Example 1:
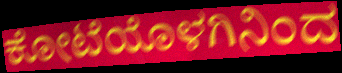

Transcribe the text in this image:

ಕೋಟೆಯೊಳಗಿನಿಂದ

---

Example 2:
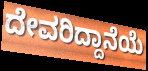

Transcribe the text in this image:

ದೇವರಿದ್ದಾನೆಯೆ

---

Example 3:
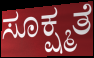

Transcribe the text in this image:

ಸೂಕ್ಷ್ಮತೆ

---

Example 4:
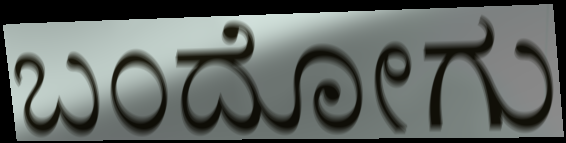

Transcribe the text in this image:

ಬಂದೋಗು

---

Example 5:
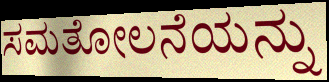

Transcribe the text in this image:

ಸಮತೋಲನೆಯನ್ನು